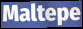
Maltepe